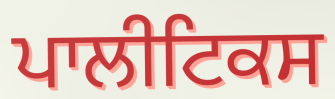
ਪਾਲੀਟਿਕਸ